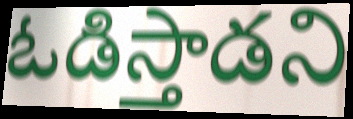
ఓడిస్తాడని